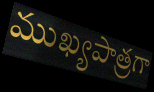
ముఖ్యపాత్రగా